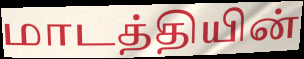
மாடத்தியின்